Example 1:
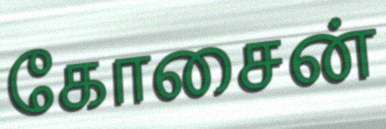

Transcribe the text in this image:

கோசைன்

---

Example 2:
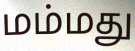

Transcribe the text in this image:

மம்மது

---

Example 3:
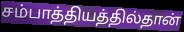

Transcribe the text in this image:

சம்பாத்தியத்தில்தான்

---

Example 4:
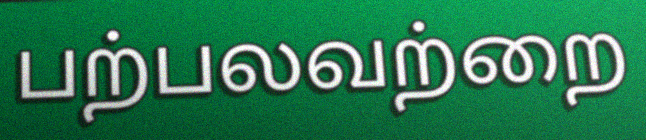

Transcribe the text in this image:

பற்பலவற்றை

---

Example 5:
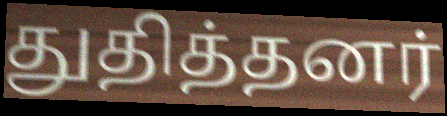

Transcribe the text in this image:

துதித்தனர்